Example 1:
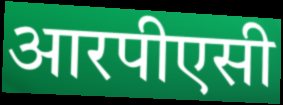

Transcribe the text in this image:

आरपीएसी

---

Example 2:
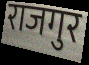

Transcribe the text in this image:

राजगुर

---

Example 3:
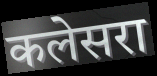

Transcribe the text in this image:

कलेसरा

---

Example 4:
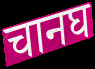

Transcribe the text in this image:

चानघ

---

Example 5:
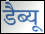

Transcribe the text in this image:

डैब्यू